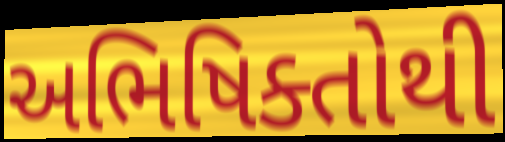
અભિષિક્તોથી